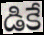
డికే